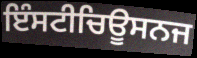
ਇੰਸਟੀਚਿਊਸਨਜ